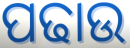
ପଢାଉ